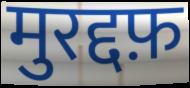
मुरद्दफ़